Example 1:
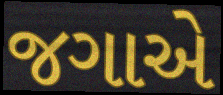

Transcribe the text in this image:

જગાએ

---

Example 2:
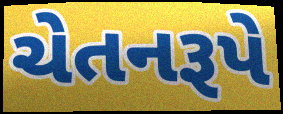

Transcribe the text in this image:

ચેતનરૂપે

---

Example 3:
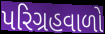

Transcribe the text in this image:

પરિગ્રહવાળો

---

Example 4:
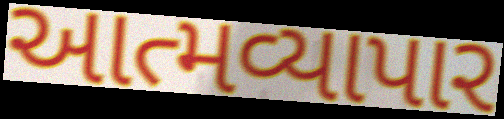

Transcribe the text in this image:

આત્મવ્યાપાર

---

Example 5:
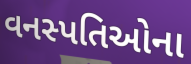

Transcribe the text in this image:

વનસ્પતિઓના